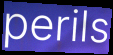
perils